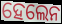
ହେଲେନ